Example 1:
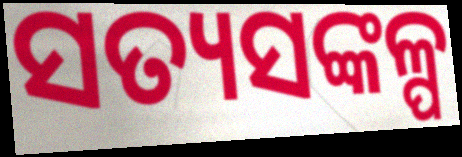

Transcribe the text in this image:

ସତ୍ୟସଙ୍କଳ୍ପ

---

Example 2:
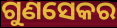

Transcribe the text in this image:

ଗୁଣସେକର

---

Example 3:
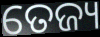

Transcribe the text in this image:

ତେଜ୍ୟ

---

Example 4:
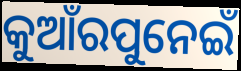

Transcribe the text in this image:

କୁଆଁରପୁନେଇଁ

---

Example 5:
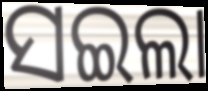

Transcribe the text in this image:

ସଇଲା